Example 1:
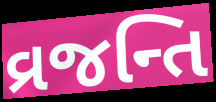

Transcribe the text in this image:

વ્રજન્તિ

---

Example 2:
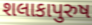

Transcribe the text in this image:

શલાકાપુરુષ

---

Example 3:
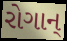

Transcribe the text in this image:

રોગાન્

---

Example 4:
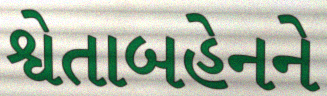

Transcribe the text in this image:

શ્વેતાબહેનને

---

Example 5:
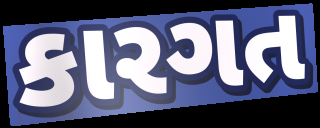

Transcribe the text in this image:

કારગત